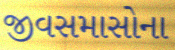
જીવસમાસોના